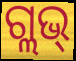
ଗ୍ଲଭ୍